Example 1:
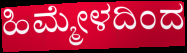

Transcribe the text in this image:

ಹಿಮ್ಮೇಳದಿಂದ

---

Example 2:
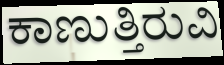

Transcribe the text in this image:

ಕಾಣುತ್ತಿರುವಿ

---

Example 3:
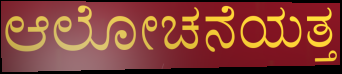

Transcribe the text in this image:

ಆಲೋಚನೆಯತ್ತ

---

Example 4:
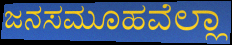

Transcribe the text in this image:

ಜನಸಮೂಹವೆಲ್ಲಾ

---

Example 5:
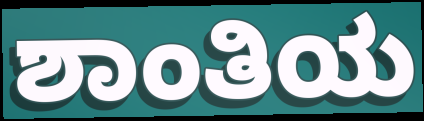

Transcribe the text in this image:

ಶಾಂತಿಯ